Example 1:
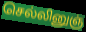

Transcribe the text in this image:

செல்லினுஞ்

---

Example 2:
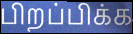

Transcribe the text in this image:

பிறப்பிக்க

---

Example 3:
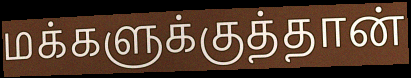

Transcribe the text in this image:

மக்களுக்குத்தான்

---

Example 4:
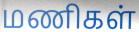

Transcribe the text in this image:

மணிகள்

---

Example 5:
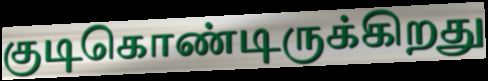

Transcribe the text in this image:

குடிகொண்டிருக்கிறது